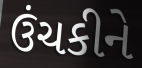
ઉંચકીને